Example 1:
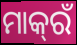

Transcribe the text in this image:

ମାକ୍‌ରଁ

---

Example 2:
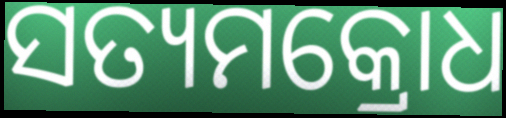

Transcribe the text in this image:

ସତ୍ୟମକ୍ରୋଧ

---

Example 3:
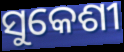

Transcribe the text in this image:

ସୁକେଶୀ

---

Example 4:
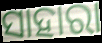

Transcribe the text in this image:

ସାହାରା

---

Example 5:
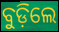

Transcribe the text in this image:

ବୁଡ଼ିଲେ